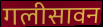
गलीसावन